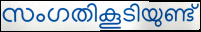
സംഗതികൂടിയുണ്ട്